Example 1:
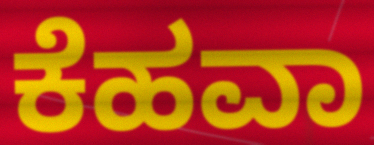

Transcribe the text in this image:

ಕೆಹವಾ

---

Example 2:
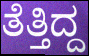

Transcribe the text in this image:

ತೆತ್ತಿದ್ದ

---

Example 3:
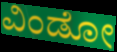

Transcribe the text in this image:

ವಿಂಡೋ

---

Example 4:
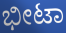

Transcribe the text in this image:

ಭೀಟಾ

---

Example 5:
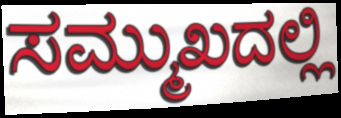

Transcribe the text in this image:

ಸಮ್ಮುಖದಲ್ಲಿ